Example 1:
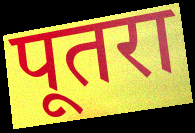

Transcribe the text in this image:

पूतरा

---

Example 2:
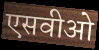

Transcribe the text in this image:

एसवीओ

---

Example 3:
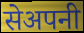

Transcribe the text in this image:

सेअपनी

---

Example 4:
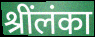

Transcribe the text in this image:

श्रींलंका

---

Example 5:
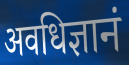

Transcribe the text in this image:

अवधिज्ञानं